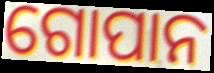
ଗୋପାନ